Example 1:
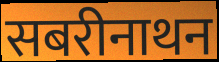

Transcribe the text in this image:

सबरीनाथन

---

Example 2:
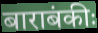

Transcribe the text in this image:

बाराबंकीः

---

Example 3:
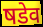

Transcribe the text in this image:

षडेव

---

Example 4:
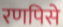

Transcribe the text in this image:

रणपिसे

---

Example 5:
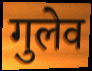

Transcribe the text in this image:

गुलेव